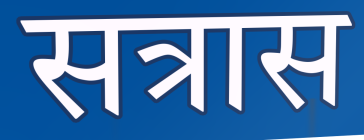
सत्रास